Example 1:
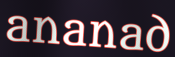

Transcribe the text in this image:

ananad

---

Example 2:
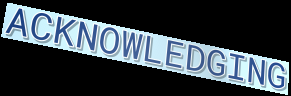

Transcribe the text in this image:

ACKNOWLEDGING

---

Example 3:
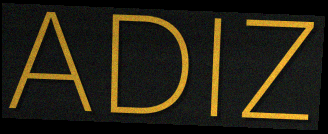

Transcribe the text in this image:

ADIZ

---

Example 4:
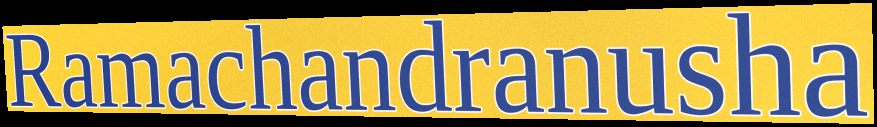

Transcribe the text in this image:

Ramachandranusha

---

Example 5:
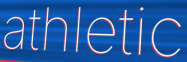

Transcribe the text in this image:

athletic